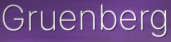
Gruenberg